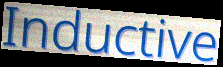
Inductive